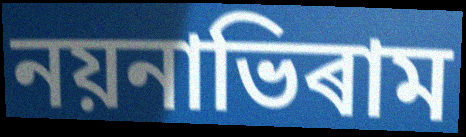
নয়নাভিৰাম